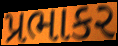
પ્રભાકર